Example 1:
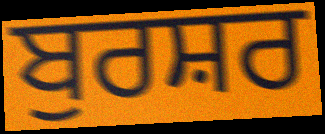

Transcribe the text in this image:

ਬੁਰਸ਼ਰ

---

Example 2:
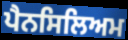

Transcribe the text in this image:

ਪੈਨਸਿਲਿਅਮ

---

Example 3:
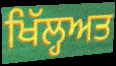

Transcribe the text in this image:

ਖਿੱਲ੍ਹਅਤ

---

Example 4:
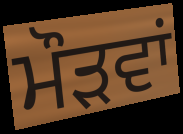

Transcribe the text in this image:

ਮੌੜਵਾਂ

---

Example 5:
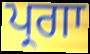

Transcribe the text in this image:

ਪ੍ਰਗਾ